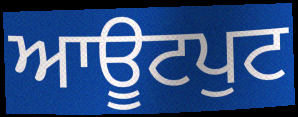
ਆਊਟਪੁਟ